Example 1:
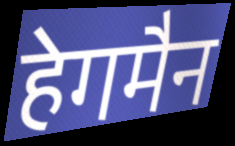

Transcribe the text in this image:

हेगमैन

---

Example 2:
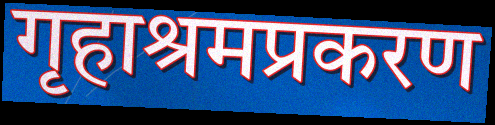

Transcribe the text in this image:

गृहाश्रमप्रकरण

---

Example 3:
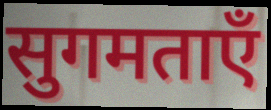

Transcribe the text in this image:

सुगमताएँ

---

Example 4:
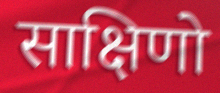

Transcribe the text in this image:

साक्षिणो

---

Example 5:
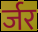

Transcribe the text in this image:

र्जर